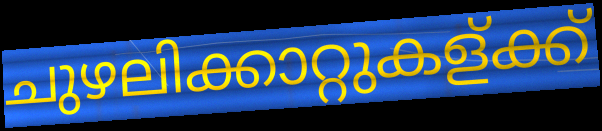
ചുഴലിക്കാറ്റുകള്ക്ക്